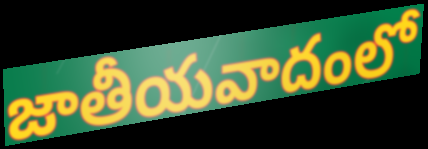
జాతీయవాదంలో